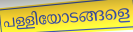
പള്ളിയോടങ്ങളെ